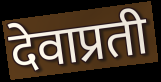
देवाप्रती